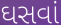
ઘસવાં